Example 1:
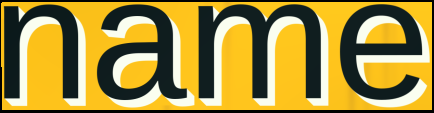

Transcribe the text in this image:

name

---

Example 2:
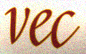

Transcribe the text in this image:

vec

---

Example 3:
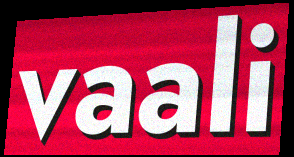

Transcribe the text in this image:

vaali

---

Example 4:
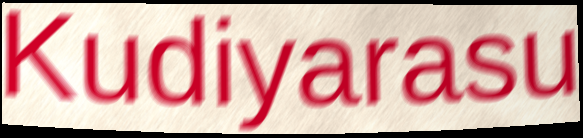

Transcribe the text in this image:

Kudiyarasu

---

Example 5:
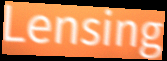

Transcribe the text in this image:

Lensing